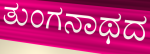
ತುಂಗನಾಥದ